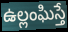
ఉల్లంఘిస్తే